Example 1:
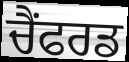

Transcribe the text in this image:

ਚੈਂਫਰਡ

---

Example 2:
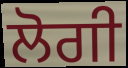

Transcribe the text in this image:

ਲੋਗੀ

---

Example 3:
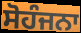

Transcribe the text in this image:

ਸੋਹੰਜਨਾ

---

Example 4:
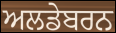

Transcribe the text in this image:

ਅਲਡੇਬਰਨ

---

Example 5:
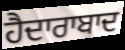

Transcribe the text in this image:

ਹੈਦਾਰਾਬਾਦ